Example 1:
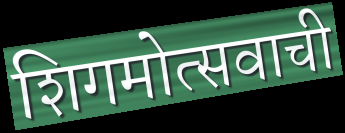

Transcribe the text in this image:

शिगमोत्सवाची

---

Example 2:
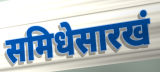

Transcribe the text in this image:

समिधेसारखं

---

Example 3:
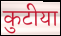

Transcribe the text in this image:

कुटीया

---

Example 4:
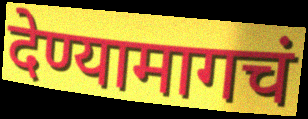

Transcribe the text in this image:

देण्यामागचं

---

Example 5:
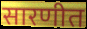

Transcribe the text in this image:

सारणीत